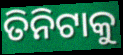
ତିନିଟାକୁ